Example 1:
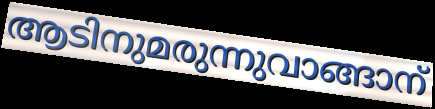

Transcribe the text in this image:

ആടിനുമരുന്നുവാങ്ങാന്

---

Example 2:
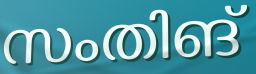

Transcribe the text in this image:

സംതിങ്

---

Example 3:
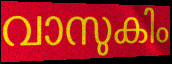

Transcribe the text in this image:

വാസുകിം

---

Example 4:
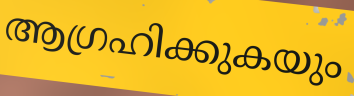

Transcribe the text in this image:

ആഗ്രഹിക്കുകയും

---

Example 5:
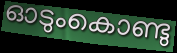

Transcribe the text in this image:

ഓടുംകൊണ്ടു